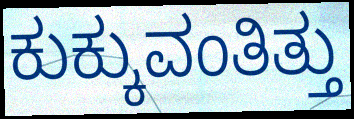
ಕುಕ್ಕುವಂತಿತ್ತು